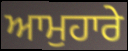
ਆਮੁਹਾਰੇ